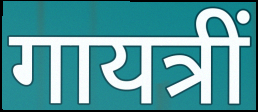
गायत्रीं